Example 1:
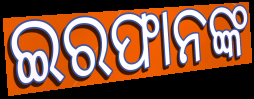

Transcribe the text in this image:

ଇରଫାନଙ୍କ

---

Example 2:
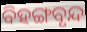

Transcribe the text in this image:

ବିହଙ୍ଗବୃନ୍ଦ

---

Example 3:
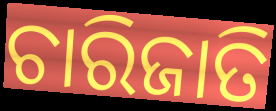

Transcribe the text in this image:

ଚାରିଜାତି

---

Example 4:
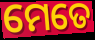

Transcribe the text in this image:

ମେତେ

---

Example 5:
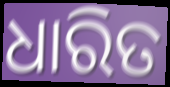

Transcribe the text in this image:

ଧାରିତ